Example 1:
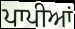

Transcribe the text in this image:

ਪਾਪੀਆਂ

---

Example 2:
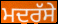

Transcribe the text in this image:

ਮਦਰੱਸੇ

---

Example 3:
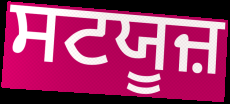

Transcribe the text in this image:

ਸਟਯੂਜ਼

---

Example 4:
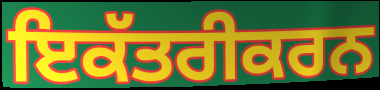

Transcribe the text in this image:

ਇਕੱਤਰੀਕਰਨ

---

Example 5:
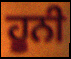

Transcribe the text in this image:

ਹੂਨੀ